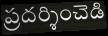
ప్రదర్శించెడి